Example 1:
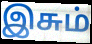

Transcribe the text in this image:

இசும்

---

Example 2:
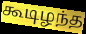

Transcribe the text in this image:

கூடிழந்த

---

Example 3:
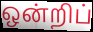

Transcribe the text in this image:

ஒன்றிப்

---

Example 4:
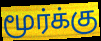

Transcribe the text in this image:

மூர்க்கு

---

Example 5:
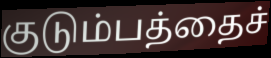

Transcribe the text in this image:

குடும்பத்தைச்